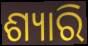
ଶ୍ୟାରି